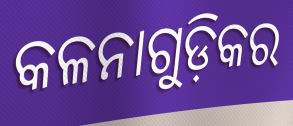
କଳନାଗୁଡ଼ିକର